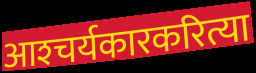
आश्‍चर्यकारकरित्या